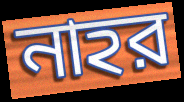
নাহর